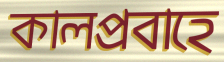
কালপ্রবাহে